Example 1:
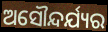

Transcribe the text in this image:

ଅସୌନ୍ଦର୍ଯ୍ୟର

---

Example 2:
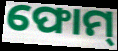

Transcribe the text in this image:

ଫୋମ୍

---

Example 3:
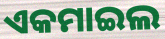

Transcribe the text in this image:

ଏକମାଇଲ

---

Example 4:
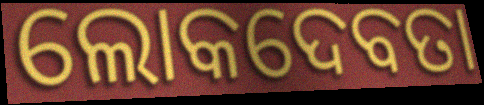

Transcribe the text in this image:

ଲୋକଦେବତା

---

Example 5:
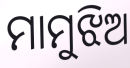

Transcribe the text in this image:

ମାମୁଝିଅ